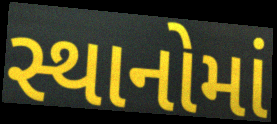
સ્થાનોમાં